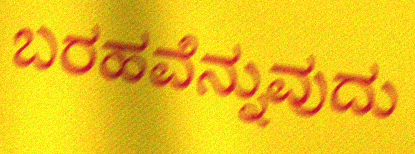
ಬರಹವೆನ್ನುವುದು